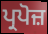
ਪ੍ਰਪੋਜ਼